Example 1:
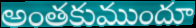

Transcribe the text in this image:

అంతకుముందూ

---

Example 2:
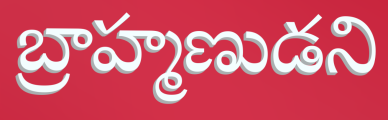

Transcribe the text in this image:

బ్రాహ్మణుడని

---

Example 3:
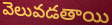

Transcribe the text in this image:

వెలువడతాయి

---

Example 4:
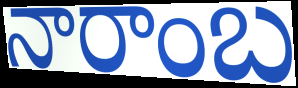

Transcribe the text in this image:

నారాంబ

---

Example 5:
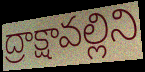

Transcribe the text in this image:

ద్రాక్షావల్లిని